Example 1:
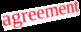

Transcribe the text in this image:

agreement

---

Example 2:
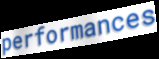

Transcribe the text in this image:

performances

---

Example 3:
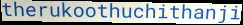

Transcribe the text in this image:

therukoothuchithanji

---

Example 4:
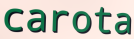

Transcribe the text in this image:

carota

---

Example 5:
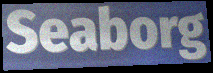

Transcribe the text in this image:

Seaborg